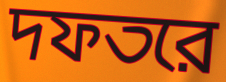
দফতরে